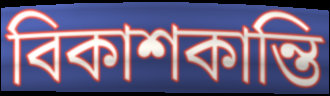
বিকাশকান্তি